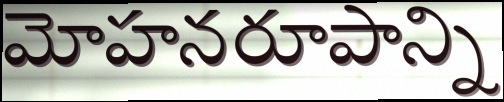
మోహనరూపాన్ని